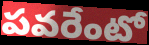
పవరేంటో